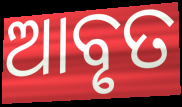
ଆବୃତ